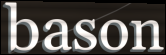
bason